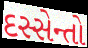
દસ્સેન્તો